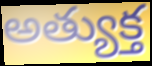
అత్యుక్త